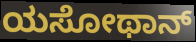
ಯಸೋಥಾನ್